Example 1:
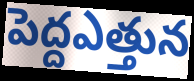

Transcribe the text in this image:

పెద్దఎత్తున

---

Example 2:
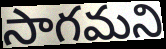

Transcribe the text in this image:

సాగమని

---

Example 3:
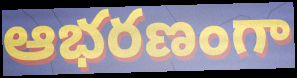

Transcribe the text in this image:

ఆభరణంగా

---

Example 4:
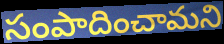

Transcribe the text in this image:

సంపాదించామని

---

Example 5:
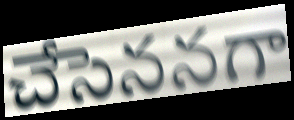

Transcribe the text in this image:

చేసెననగా